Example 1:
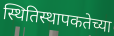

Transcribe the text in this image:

स्थितिस्थापकतेच्या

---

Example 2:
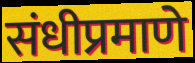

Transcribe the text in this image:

संधीप्रमाणे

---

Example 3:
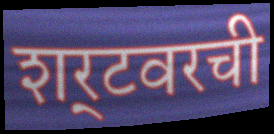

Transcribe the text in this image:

शर्टवरची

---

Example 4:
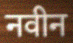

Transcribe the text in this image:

नवीन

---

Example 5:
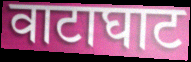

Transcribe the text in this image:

वाटाघाट